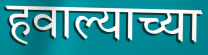
हवाल्याच्या